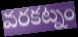
వరకట్నం